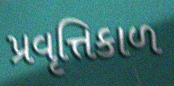
પ્રવૃત્તિકાળ